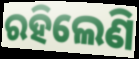
ରହିଲେଣି